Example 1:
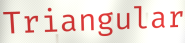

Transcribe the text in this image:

Triangular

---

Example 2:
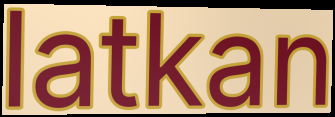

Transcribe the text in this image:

latkan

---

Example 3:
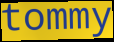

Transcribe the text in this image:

tommy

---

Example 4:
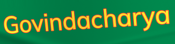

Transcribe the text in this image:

Govindacharya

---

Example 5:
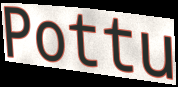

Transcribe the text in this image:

Pottu